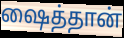
ஷைத்தான்